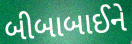
બીબાબાઈને